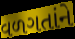
વળગતાંને